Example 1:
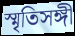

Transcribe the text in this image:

স্মৃতিসঙ্গী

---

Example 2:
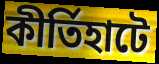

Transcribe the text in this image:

কীর্তিহাটে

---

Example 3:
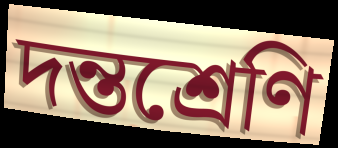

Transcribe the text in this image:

দন্তশ্রেণি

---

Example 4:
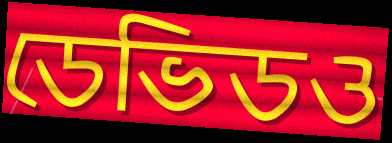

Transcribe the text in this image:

ডেভিডও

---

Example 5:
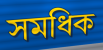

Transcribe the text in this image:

সমধিক